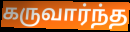
கருவார்ந்த